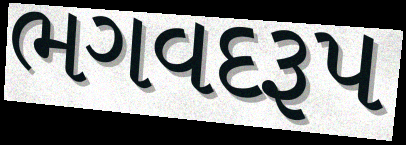
ભગવદરૂપ